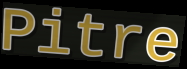
Pitre